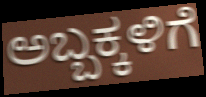
ಅಬ್ಬಕ್ಕಳಿಗೆ